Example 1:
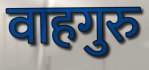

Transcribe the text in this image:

वाहगुरु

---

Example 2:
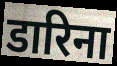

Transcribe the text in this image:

डारिना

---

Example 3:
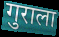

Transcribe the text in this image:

गुराला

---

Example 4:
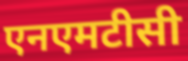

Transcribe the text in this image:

एनएमटीसी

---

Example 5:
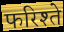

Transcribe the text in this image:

फरिश्ते